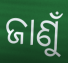
ଜାଣୁଁ